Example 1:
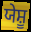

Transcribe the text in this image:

ਯੇਸ਼ੂ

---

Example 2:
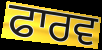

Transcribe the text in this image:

ਫਾਰਵ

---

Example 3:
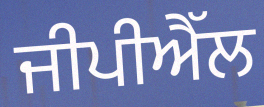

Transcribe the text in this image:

ਜੀਪੀਐੱਲ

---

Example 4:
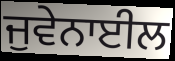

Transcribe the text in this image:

ਜੁਵੇਨਾਈਲ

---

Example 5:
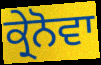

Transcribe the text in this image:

ਕ੍ਰੇਨੋਵਾ